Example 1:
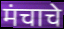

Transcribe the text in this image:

मंचाचे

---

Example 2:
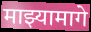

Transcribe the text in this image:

माझ्यामागे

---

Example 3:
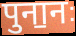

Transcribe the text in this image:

पुना॒नः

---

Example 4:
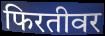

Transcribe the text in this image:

फिरतीवर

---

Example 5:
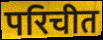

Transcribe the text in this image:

परिचीत